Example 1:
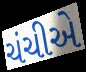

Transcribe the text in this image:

ચંચીએ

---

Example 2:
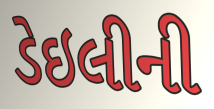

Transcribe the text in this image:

ડેઇલીની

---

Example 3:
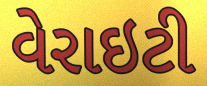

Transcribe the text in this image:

વેરાઇટી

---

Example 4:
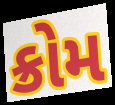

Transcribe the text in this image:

ક્રોમ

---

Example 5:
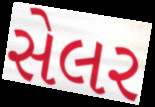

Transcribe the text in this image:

સેલર